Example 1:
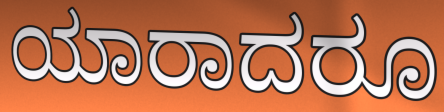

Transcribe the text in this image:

ಯಾರಾದರೂ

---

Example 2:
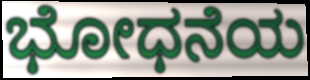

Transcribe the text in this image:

ಭೋಧನೆಯ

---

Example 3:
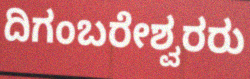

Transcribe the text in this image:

ದಿಗಂಬರೇಶ್ವರರು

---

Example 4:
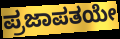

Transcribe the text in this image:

ಪ್ರಜಾಪತಯೇ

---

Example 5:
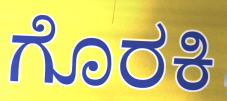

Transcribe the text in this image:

ಗೊರಕಿ